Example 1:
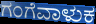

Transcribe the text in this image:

ಗಂಗೆವಾಳುಕ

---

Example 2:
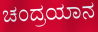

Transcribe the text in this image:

ಚಂದ್ರಯಾನ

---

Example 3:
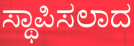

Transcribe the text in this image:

ಸ್ಥಾಪಿಸಲಾದ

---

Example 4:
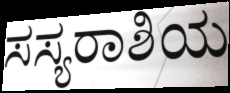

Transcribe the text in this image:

ಸಸ್ಯರಾಶಿಯ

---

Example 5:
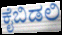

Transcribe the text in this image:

ಕೈಬಿಡಲಿ